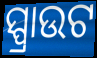
ସ୍ପ୍ରାଉଟ